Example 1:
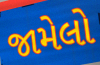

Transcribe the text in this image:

જામેલો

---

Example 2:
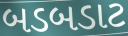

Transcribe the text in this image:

બડબડાટ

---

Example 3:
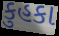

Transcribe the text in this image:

કુહકા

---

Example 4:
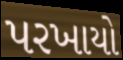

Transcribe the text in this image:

પરખાયો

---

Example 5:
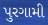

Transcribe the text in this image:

પુરગામી